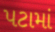
પટામાં